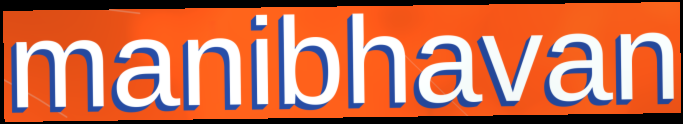
manibhavan